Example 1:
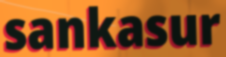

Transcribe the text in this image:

sankasur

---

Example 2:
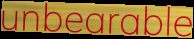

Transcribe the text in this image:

unbearable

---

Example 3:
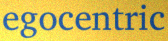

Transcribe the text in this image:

egocentric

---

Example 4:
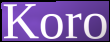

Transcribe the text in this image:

Koro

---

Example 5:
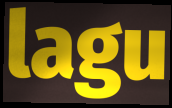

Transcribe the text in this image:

lagu